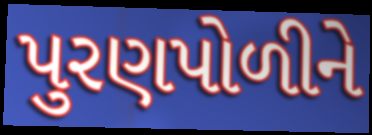
પુરણપોળીને